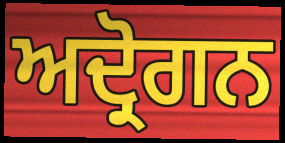
ਅਦ੍ਰੋਗਨ